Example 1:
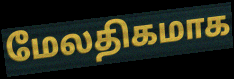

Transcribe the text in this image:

மேலதிகமாக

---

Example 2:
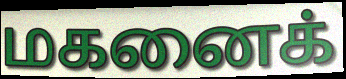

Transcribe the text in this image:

மகனைக்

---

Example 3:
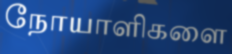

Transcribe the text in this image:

நோயாளிகளை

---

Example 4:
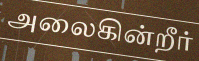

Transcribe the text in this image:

அலைகின்றீர்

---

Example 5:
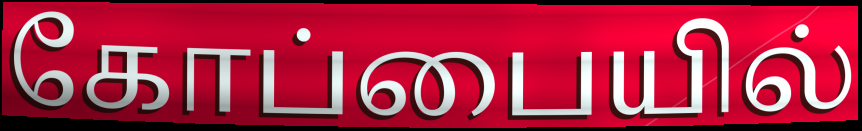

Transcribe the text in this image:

கோப்பையில்